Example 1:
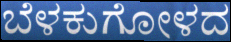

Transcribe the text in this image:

ಬೆಳಕುಗೋಳದ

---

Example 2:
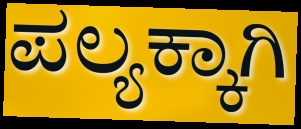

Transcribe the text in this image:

ಪಲ್ಯಕ್ಕಾಗಿ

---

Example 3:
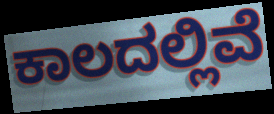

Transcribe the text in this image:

ಕಾಲದಲ್ಲಿವೆ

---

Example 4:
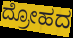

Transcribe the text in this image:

ದ್ರೋಹದ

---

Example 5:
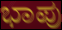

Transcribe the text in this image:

ಭಾಪು